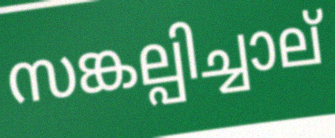
സങ്കല്പിച്ചാല്